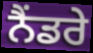
ਨੈਂਡਰੇ